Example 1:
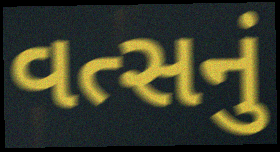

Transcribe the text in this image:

વત્સનું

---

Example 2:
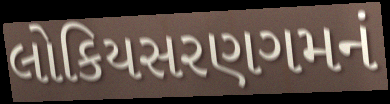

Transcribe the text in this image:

લોકિયસરણગમનં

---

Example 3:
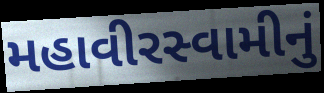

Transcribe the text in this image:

મહાવીરસ્વામીનું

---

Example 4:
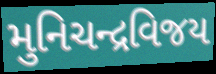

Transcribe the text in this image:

મુનિચન્દ્રવિજય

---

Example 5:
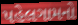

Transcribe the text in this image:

પહેલગામનો